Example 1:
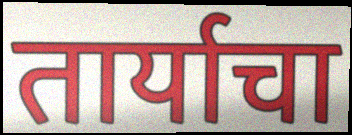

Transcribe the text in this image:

तार्याचा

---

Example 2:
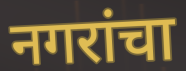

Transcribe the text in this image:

नगरांचा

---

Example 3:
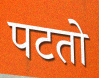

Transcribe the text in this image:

पटतो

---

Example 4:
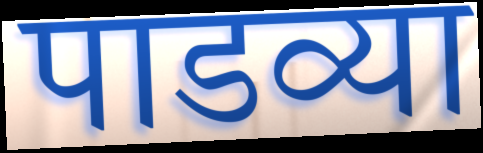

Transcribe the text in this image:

पाडव्या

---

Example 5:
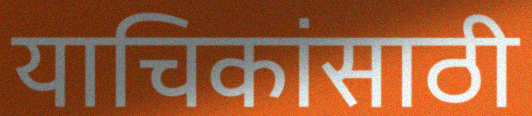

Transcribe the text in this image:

याचिकांसाठी